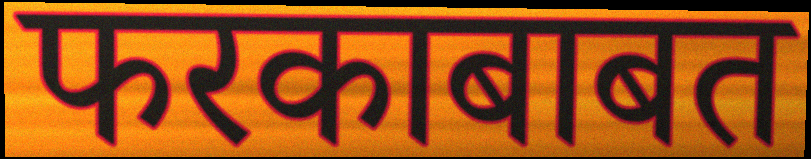
फरकाबाबत